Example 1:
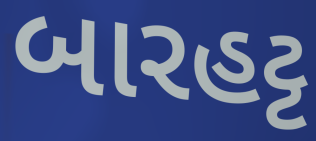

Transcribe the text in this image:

બારહટ્ટ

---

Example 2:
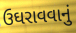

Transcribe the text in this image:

ઉઘરાવવાનું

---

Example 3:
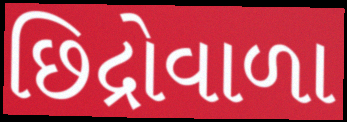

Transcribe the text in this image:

છિદ્રોવાળા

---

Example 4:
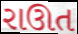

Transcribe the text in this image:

રાઊત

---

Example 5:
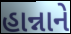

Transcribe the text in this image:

હાન્નાને